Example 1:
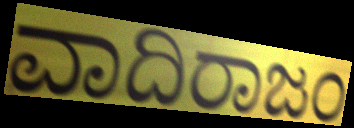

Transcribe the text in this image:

ವಾದಿರಾಜಂ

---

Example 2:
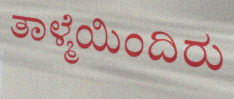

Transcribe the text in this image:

ತಾಳ್ಮೆಯಿಂದಿರು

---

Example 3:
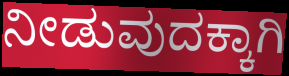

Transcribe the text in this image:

ನೀಡುವುದಕ್ಕಾಗಿ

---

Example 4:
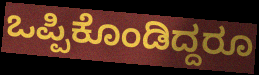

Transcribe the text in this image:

ಒಪ್ಪಿಕೊಂಡಿದ್ದರೂ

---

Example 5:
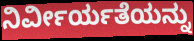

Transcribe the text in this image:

ನಿರ್ವೀರ್ಯತೆಯನ್ನು